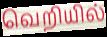
வெறியில்